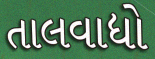
તાલવાદ્યો